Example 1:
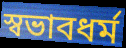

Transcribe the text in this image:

স্বভাবধর্ম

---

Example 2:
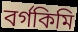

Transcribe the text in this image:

বর্গকিমি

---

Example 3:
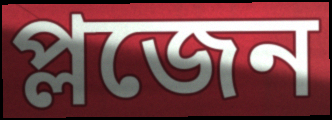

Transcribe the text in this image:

প্লজেন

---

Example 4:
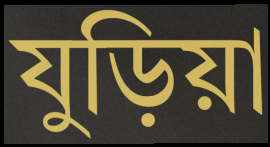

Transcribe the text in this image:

যুড়িয়া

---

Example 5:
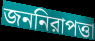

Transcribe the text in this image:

জননিরাপত্তা